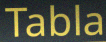
Tabla